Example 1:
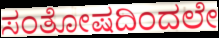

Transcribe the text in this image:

ಸಂತೋಷದಿಂದಲೇ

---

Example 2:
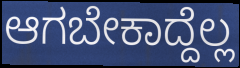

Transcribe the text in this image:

ಆಗಬೇಕಾದ್ದೆಲ್ಲ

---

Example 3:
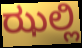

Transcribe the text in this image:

ಝಲ್ಲಿ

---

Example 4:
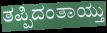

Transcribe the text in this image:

ತಪ್ಪಿದಂತಾಯ್ತು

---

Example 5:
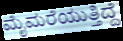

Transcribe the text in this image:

ಮೈಮರೆಯುತ್ತಿದ್ದೆ